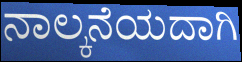
ನಾಲ್ಕನೆಯದಾಗಿ